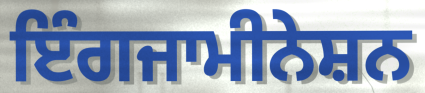
ਇੰਗਜਾਮੀਨੇਸ਼ਨ